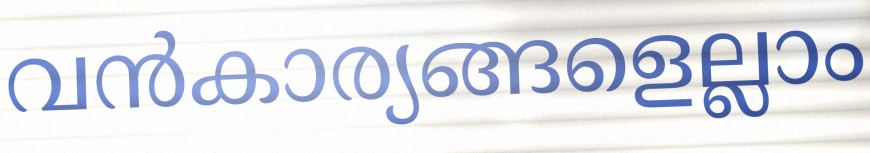
വൻകാര്യങ്ങളെല്ലാം